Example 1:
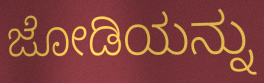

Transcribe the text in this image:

ಜೋಡಿಯನ್ನು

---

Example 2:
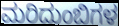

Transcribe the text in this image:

ಮರಿದುಂಬಿಗಳ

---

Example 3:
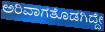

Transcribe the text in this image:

ಅರಿವಾಗತೊಡಗಿದ್ದೇ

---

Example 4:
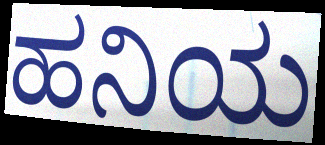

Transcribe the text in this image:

ಹನಿಯ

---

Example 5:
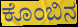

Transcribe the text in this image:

ಕೊಂಬಿನ